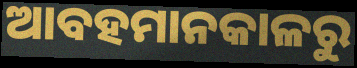
ଆବହମାନକାଳରୁ